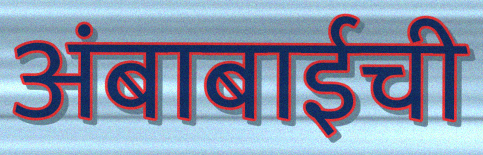
अंबाबाईची